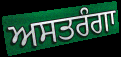
ਅਸਤਰੰਗਾ